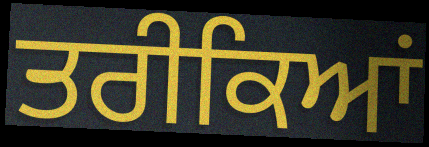
ਤਰੀਕਿਆਂ